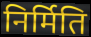
निर्मिति